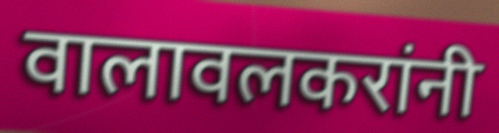
वालावलकरांनी